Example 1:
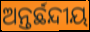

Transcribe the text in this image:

ଅନ୍ତର୍ଛନ୍ଦୀୟ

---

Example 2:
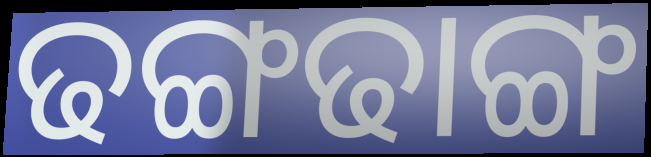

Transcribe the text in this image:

ଢଙ୍ଗଢାଙ୍ଗ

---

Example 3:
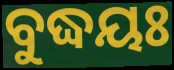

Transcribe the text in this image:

ବୁଦ୍ଧୟଃ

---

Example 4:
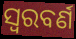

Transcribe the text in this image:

ସ୍ଵରବର୍ଣ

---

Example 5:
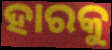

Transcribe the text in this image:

ହାରକୁ